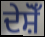
ਦੇਸ਼ੋਁ